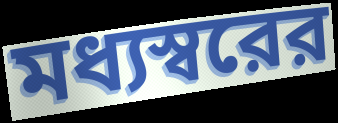
মধ্যস্বরের